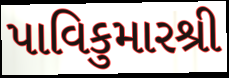
પાવિકુમારશ્રી